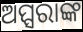
ଅପ୍ସରାଙ୍କ